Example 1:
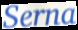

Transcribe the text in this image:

Serna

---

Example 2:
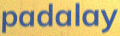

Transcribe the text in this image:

padalay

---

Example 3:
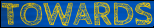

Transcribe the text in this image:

TOWARDS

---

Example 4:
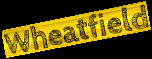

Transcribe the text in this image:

Wheatfield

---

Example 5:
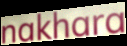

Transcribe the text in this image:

nakhara